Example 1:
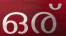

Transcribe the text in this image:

ഒര്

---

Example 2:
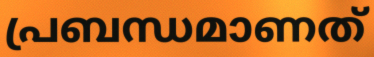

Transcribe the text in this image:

പ്രബന്ധമാണത്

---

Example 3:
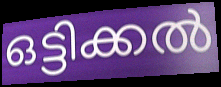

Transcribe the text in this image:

ഒട്ടിക്കൽ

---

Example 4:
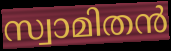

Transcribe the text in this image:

സ്വാമിതൻ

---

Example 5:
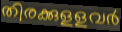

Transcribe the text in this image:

തിരക്കുളളവർ